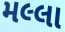
મલ્લા